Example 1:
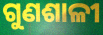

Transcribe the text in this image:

ଗୁଣଶାଳୀ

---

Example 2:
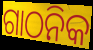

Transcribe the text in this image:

ଗାଠନିକ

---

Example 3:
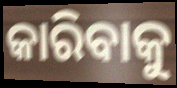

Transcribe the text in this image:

କାରିବାକୁ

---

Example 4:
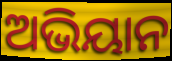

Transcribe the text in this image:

ଅଭିୟାନ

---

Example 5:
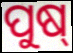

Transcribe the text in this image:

ପୁଷ୍